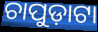
ଚାପୁଡ଼ାଟା